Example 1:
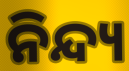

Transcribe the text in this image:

ନିନ୍ଦ୍ୟ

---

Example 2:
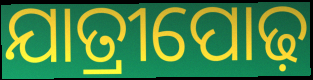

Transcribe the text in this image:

ଯାତ୍ରୀପୋଢ଼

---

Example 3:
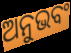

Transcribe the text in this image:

ଅନୁଭବଂ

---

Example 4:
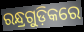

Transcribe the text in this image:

ରନ୍ଧ୍ରଗୁଡ଼ିକରେ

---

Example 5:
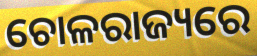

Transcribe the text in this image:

ଚୋଳରାଜ୍ୟରେ